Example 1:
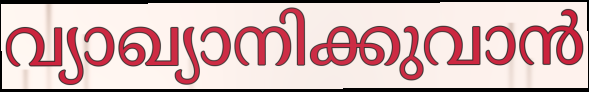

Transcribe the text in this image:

വ്യാഖ്യാനിക്കുവാൻ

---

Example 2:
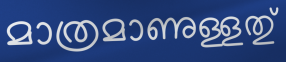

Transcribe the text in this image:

മാത്രമാണുള്ളതു്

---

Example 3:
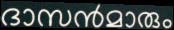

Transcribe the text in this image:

ദാസൻമാരും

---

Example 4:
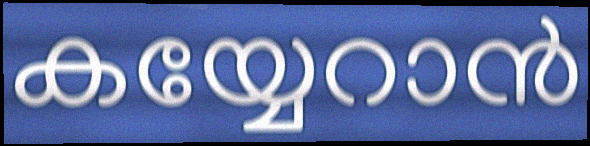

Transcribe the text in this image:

കയ്യേറാൻ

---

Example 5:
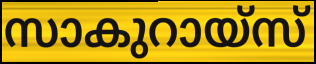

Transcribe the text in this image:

സാകുറായ്സ്